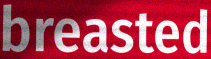
breasted